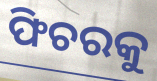
ଫିଚରକୁ